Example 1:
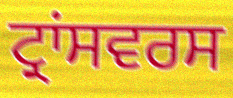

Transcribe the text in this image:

ਟ੍ਰਾਂਸਵਰਸ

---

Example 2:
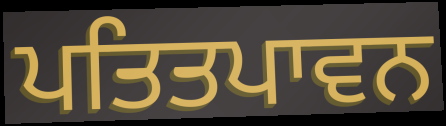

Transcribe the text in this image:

ਪਤਿਤਪਾਵਨ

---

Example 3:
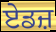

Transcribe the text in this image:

ਏਡਜ਼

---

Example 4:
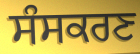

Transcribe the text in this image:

ਸੰਸਕਰਣ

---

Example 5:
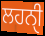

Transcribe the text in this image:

ਲਹਨੑੀ